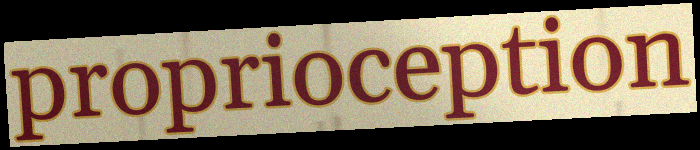
proprioception